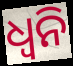
ଧ୍ବନି